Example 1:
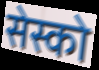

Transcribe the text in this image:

सेस्को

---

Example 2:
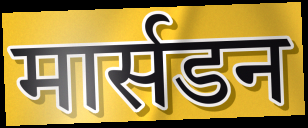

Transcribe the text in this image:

मार्सडन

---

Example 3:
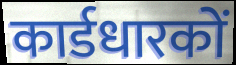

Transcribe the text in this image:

कार्डधारकों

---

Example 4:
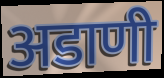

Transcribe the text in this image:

अडाणी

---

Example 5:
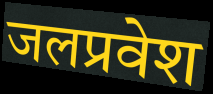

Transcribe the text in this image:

जलप्रवेश